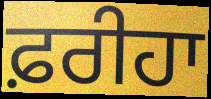
ਫ਼ਰੀਹਾ